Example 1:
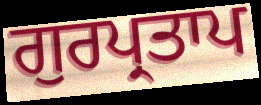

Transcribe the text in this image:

ਗੁਰਪ੍ਰਤਾਪ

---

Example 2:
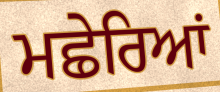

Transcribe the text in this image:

ਮਛੇਰਿਆਂ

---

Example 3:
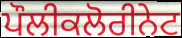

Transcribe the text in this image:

ਪੌਲੀਕਲੋਰੀਨੇਟ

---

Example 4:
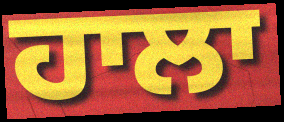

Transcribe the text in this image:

ਹਾਲਾ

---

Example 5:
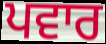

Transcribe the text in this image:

ਪਵਾਰ